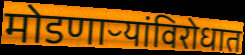
मोडणाऱ्यांविरोधात